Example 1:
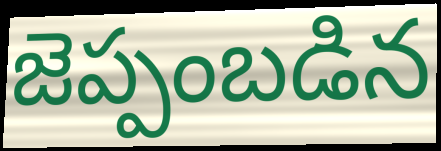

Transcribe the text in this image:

జెప్పంబడిన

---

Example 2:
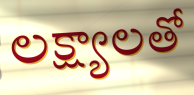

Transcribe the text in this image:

లక్ష్యాలతో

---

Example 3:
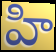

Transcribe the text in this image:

హి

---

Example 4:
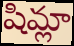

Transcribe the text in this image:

షిమ్లా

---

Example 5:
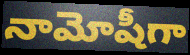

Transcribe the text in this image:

నామోషీగా